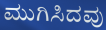
ಮುಗಿಸಿದವು